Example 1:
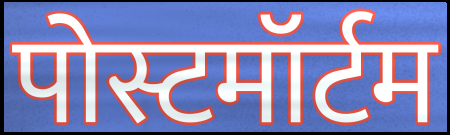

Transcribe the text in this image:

पोस्टमॉर्टम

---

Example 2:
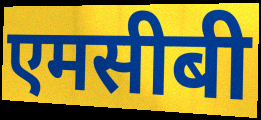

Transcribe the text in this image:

एमसीबी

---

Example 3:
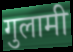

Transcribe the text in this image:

गुलामी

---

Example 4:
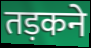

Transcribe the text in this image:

तड़कने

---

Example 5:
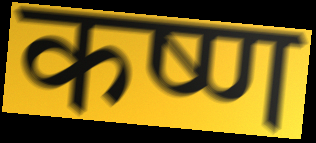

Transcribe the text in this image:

कष्ण